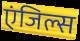
एंजिल्‍स